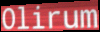
Olirum